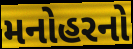
મનોહરનો